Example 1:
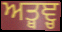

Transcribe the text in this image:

ਅਤ੍ਥਞ੍ਚ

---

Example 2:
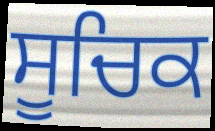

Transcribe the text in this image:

ਸੂਚਿਕ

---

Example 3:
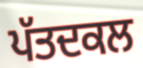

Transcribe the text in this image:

ਪੱਤਦਕਲ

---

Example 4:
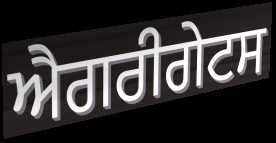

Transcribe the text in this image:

ਐਗਰੀਗੇਟਸ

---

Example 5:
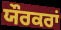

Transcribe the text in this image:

ਯੌਰਕਰਾਂ